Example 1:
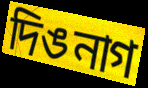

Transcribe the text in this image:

দিঙনাগ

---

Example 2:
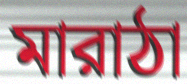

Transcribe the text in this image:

মারাঠা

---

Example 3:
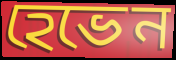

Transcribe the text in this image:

হেভেন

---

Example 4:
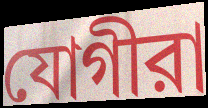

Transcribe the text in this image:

যোগীরা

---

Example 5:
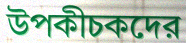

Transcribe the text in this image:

উপকীচকদের